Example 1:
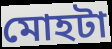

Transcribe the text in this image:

মোহটা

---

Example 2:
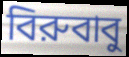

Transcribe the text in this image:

বিরুবাবু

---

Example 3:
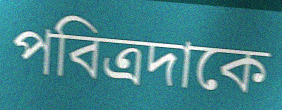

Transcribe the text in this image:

পবিত্রদাকে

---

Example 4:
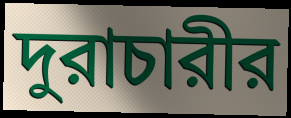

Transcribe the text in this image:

দুরাচারীর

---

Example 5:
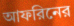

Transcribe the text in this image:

আফরিনের